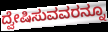
ದ್ವೇಷಿಸುವವರನ್ನೂ